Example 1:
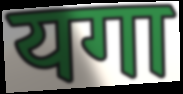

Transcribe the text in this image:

यगा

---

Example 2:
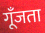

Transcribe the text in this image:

गूँजता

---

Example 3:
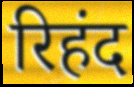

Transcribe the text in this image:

रिहंद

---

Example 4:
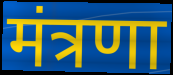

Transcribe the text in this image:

मंत्रणा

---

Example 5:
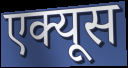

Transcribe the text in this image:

एक्यूस